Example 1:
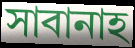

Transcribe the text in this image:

সাবানাহ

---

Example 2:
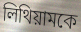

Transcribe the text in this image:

লিথিয়ামকে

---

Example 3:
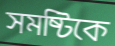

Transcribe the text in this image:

সমষ্টিকে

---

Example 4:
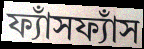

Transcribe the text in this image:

ফ্যাঁসফ্যাঁস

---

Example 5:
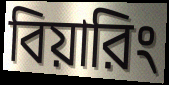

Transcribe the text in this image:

বিয়ারিং